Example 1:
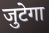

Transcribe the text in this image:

जुटेगा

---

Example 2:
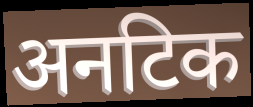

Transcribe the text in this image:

अनटिक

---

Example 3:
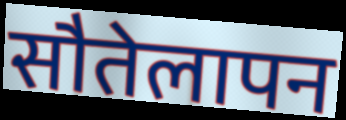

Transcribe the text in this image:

सौतेलापन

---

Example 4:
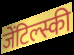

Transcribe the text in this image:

जेंटिल्स्की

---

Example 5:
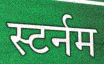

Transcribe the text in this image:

स्टर्नम